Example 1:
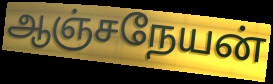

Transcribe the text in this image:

ஆஞ்சநேயன்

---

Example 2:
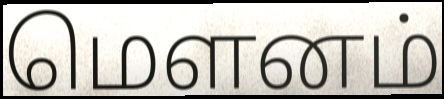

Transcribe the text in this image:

மௌனம்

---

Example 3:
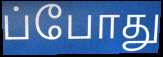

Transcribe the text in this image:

ப்போது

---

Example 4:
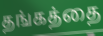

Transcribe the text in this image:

தங்கத்தை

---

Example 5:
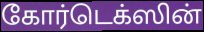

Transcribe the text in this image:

கோர்டெக்ஸின்